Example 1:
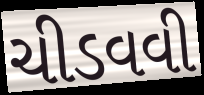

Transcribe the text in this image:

ચીડવવી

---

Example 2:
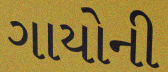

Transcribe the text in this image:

ગાયોની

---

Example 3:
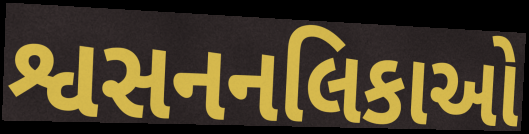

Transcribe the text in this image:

શ્વસનનલિકાઓ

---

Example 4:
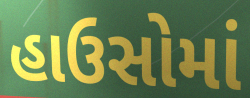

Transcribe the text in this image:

હાઉસોમાં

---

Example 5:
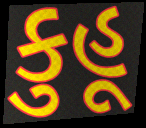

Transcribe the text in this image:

કુહૂ